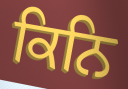
ਕਿਨਿ